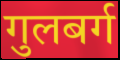
गुलबर्ग